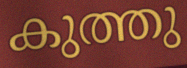
കുത്തു